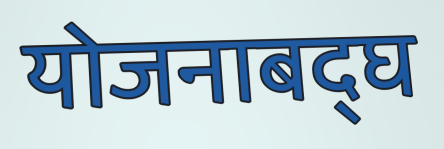
योजनाबद्घ